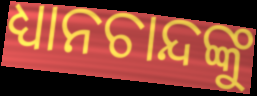
ଧ୍ୟାନଚାନ୍ଦଙ୍କୁ